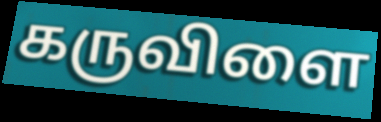
கருவிளை